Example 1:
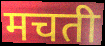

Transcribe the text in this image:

मचती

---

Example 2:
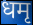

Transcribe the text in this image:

धमृ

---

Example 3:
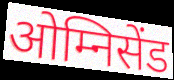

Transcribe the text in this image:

ओम्निसेंड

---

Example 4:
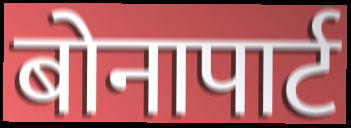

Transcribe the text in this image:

बोनापार्ट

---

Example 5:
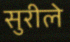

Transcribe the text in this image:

सुरीले